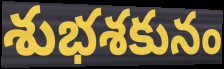
శుభశకునం